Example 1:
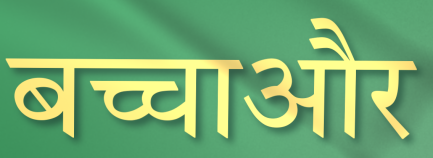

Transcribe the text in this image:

बच्चाऔर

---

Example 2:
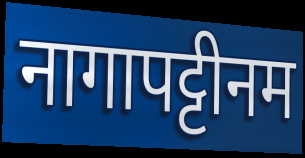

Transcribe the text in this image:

नागापट्टीनम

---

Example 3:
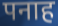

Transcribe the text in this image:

पनाह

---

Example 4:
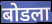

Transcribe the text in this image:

बोडला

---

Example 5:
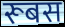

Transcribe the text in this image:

रूबस